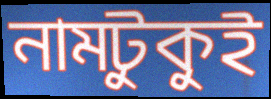
নামটুকুই